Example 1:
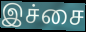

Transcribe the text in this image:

இச்சை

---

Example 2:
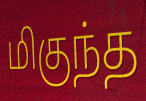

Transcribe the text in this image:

மிகுந்த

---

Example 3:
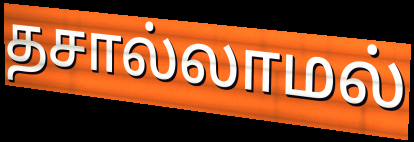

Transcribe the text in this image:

தசால்லாமல்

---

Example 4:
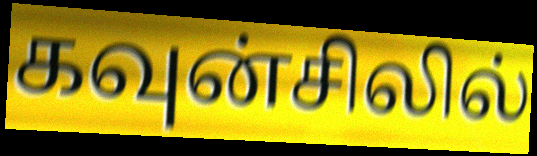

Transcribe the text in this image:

கவுன்சிலில்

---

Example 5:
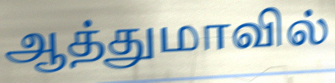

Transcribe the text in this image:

ஆத்துமாவில்